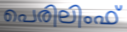
പെരിലിംഫ്